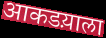
आकडय़ाला